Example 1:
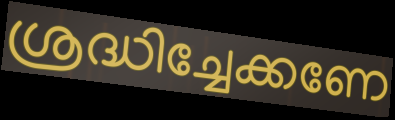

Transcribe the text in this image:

ശ്രദ്ധിച്ചേക്കണേ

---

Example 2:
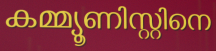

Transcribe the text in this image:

കമ്മ്യൂണിസ്റ്റിനെ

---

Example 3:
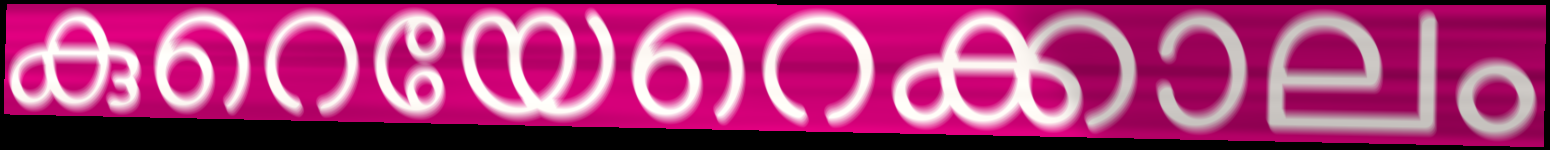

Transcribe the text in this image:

കുറെയേറെക്കാലം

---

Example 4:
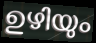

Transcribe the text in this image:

ഉഴിയും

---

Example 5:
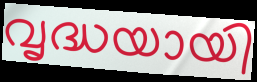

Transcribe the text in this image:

വൃദ്ധയായി